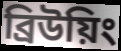
ব্রিউয়িং